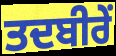
ਤਦਬੀਰੇਂ